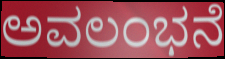
ಅವಲಂಭನೆ